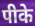
पीके